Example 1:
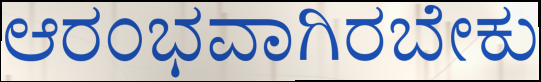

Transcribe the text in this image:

ಆರಂಭವಾಗಿರಬೇಕು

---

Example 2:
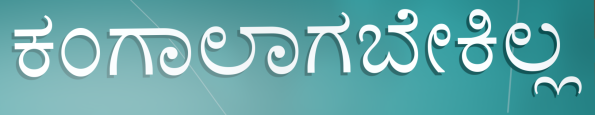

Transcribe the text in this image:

ಕಂಗಾಲಾಗಬೇಕಿಲ್ಲ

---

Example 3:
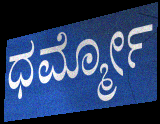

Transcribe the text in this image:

ಧರ್ಮ್ಮೋ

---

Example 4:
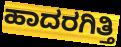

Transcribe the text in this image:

ಹಾದರಗಿತ್ತಿ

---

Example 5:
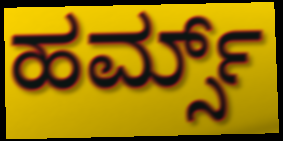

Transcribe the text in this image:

ಹರ್ಮ್ಸ್